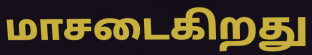
மாசடைகிறது